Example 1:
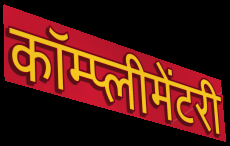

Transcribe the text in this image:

कॉम्प्लीमेंटरी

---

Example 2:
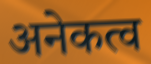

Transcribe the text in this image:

अनेकत्व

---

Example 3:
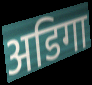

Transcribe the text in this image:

अडिगा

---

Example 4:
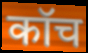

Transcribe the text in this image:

कॉच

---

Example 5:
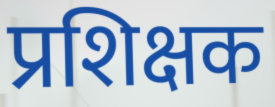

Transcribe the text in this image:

प्रशिक्षक